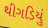
થીગડિયું